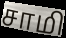
சாமி